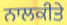
ਨਾਲਕੀਤੇ